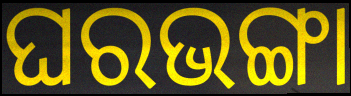
ଘରଭଙ୍ଗା